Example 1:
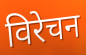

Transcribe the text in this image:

विरेचन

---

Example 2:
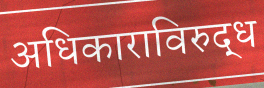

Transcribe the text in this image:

अधिकाराविरुद्ध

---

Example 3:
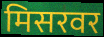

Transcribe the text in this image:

मिसरवर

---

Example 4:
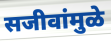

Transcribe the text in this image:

सजीवांमुळे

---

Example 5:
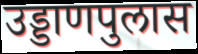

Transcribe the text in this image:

उड्डाणपुलास